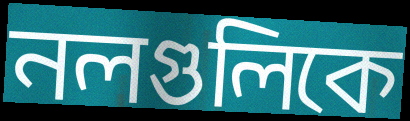
নলগুলিকে